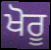
ਖੋਰੂ